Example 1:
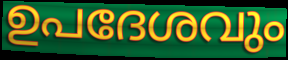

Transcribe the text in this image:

ഉപദേശവും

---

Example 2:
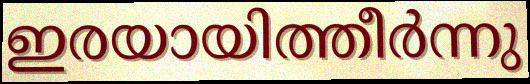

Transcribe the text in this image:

ഇരയായിത്തീർന്നു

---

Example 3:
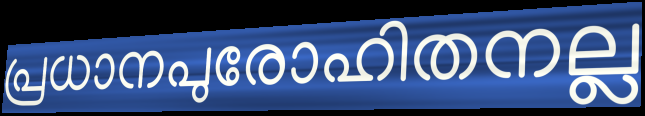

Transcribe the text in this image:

പ്രധാനപുരോഹിതനല്ല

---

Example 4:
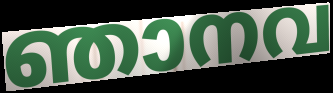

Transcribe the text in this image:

ഞാനവ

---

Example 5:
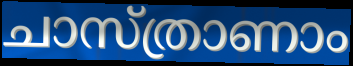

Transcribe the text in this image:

ചാസ്ത്രാണാം